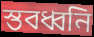
স্তবধ্বনি